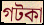
গটকা